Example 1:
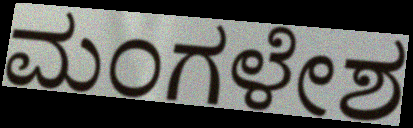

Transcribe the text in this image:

ಮಂಗಳೇಶ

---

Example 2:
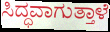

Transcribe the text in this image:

ಸಿದ್ಧವಾಗುತ್ತಾಳೆ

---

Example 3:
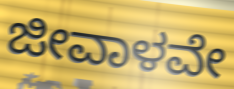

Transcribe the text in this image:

ಜೀವಾಳವೇ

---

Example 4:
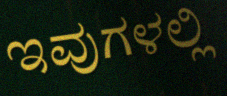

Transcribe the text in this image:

ಇವುಗಳಲ್ಲಿ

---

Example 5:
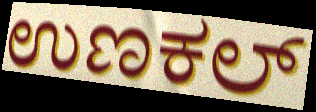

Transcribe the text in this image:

ಉಣಕಲ್